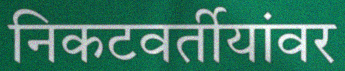
निकटवर्तीयांवर